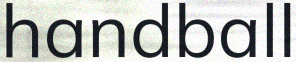
handball